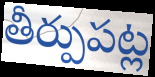
తీర్పుపట్ల